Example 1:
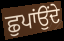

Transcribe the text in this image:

ਛੁਪਾਂਉਂਦੇ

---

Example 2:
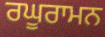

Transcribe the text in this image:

ਰਘੂਰਾਮਨ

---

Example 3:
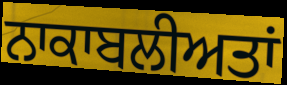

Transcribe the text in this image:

ਨਾਕਾਬਲੀਅਤਾਂ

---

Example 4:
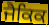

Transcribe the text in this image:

ਜੈਕਿਕ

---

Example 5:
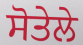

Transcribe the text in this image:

ਸੋਤੇਲੇ